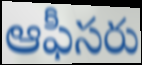
ఆఫీసరు